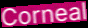
Corneal